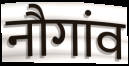
नौगांव